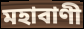
মহাবাণী